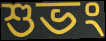
শুভং